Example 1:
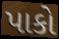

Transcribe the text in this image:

પાકો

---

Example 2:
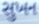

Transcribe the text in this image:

સુખન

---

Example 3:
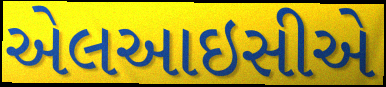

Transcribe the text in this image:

એલઆઇસીએ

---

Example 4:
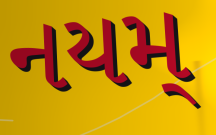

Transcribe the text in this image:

નયમ્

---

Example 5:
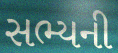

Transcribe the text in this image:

સભ્યની